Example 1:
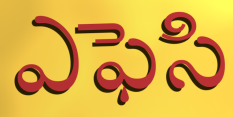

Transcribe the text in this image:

ఎఫెసి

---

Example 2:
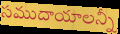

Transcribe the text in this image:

సముదాయాలన్నీ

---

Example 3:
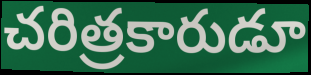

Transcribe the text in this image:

చరిత్రకారుడూ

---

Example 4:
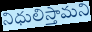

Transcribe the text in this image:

నిధులిస్తామని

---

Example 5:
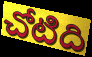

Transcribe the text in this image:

చోటిది